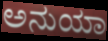
ಅನುಯಾ